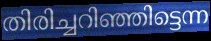
തിരിച്ചറിഞ്ഞിട്ടെന്ന